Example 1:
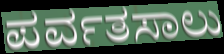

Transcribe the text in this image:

ಪರ್ವತಸಾಲು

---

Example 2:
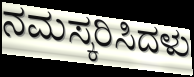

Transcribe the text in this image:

ನಮಸ್ಕರಿಸಿದಳು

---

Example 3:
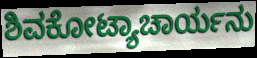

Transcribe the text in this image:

ಶಿವಕೋಟ್ಯಾಚಾರ್ಯನು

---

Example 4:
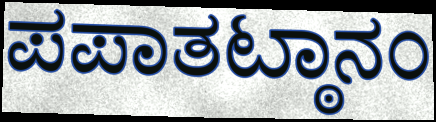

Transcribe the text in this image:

ಪಪಾತಟ್ಠಾನಂ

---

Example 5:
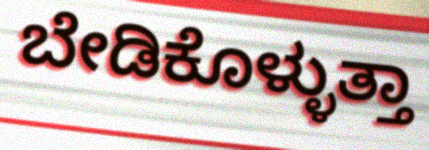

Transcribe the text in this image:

ಬೇಡಿಕೊಳ್ಳುತ್ತಾ